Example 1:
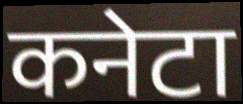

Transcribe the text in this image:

कनेटा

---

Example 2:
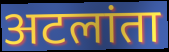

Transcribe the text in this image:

अटलांता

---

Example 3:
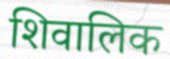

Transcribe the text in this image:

शिवालिक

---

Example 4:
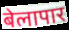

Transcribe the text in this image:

बेलापार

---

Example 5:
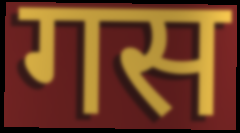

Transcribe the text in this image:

गस